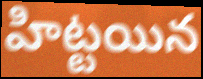
హిట్టయిన